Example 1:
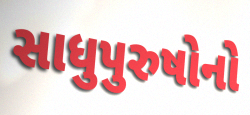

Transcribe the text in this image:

સાધુપુરુષોનો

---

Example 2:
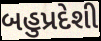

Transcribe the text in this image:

બહુપ્રદેશી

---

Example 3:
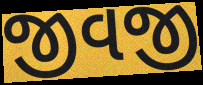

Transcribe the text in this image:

જીવજી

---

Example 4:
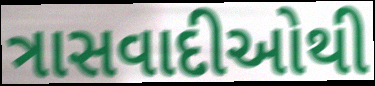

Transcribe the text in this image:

ત્રાસવાદીઓથી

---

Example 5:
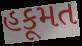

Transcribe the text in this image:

હકૂમત